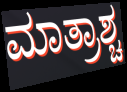
ಮಾತ್ರಾಶ್ಚ